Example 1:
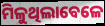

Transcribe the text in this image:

ମିଳୁଥିଲାବେଳେ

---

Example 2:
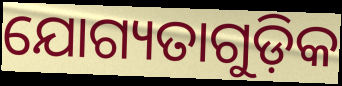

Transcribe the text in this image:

ଯୋଗ୍ୟତାଗୁଡ଼ିକ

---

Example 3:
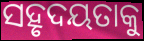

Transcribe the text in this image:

ସହୃଦୟତାକୁ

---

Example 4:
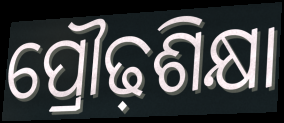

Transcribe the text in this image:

ପ୍ରୌଢ଼ଶିକ୍ଷା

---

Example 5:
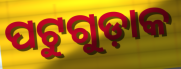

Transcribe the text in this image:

ପଟୁଗୁଡ଼ାକ